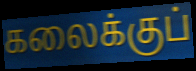
கலைக்குப்